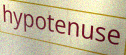
hypotenuse